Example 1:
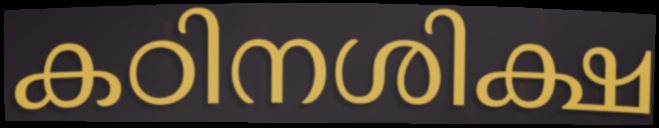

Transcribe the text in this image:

കഠിനശിക്ഷ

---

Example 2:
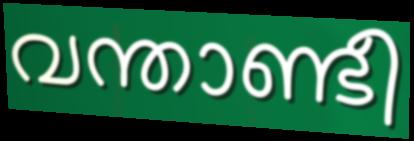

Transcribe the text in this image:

വന്താണ്ടീ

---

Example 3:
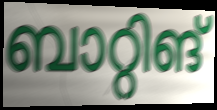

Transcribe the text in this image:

ബാറ്റിങ്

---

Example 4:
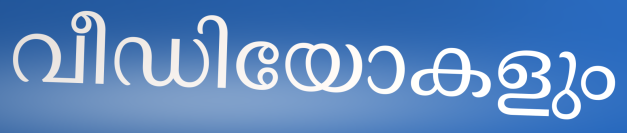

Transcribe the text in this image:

വീഡിയോകളും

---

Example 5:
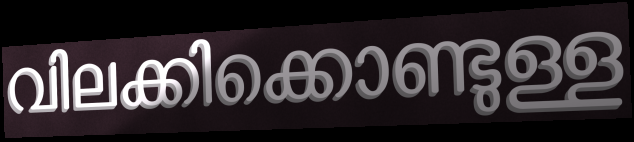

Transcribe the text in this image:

വിലക്കിക്കൊണ്ടുള്ള